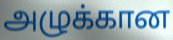
அழுக்கான